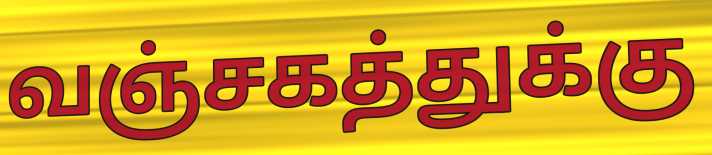
வஞ்சகத்துக்கு